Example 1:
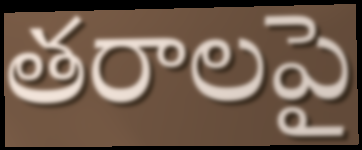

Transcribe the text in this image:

తరాలపై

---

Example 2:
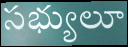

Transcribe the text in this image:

సభ్యులూ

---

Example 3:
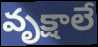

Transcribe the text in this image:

వృక్షాలే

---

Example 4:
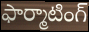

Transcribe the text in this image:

ఫార్మాటింగ్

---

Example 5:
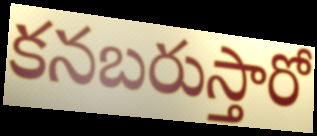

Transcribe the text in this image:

కనబరుస్తారో